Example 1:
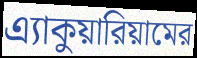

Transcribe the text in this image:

এ্যাকুয়ারিয়ামের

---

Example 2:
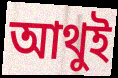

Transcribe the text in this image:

আথুই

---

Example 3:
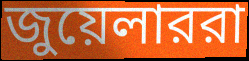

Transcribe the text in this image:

জুয়েলাররা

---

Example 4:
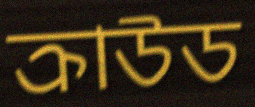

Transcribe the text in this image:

ক্রাউড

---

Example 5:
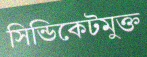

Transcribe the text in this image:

সিন্ডিকেটমুক্ত